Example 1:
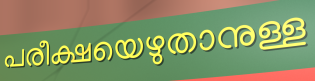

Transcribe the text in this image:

പരീക്ഷയെഴുതാനുള്ള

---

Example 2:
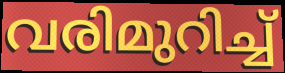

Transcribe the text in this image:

വരിമുറിച്ച്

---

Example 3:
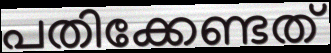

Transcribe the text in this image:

പതിക്കേണ്ടത്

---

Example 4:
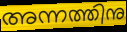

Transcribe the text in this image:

അന്നത്തിനു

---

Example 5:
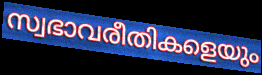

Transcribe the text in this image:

സ്വഭാവരീതികളെയും